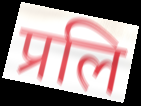
प्रलि